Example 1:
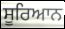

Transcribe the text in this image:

ਸੂਰਿਆਨ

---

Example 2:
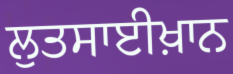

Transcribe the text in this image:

ਲੁਤਸਾਈਖ਼ਾਨ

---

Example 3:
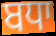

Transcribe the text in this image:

ਬਧਾ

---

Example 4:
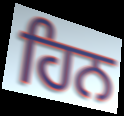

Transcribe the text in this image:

ਹਿਨ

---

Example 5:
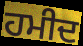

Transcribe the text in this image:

ਹਮੀਦ